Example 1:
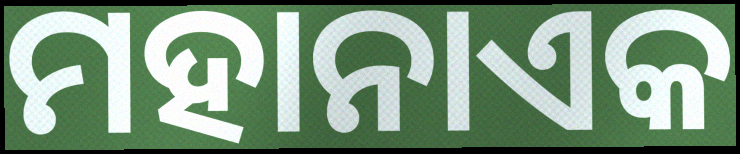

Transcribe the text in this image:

ମହାନାଏକ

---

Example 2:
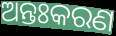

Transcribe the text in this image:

ଅନ୍ତଃକରଣ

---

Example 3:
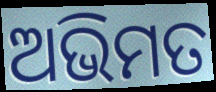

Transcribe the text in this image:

ଅଭିମତ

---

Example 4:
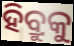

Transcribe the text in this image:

ହିବ୍ରୁକୁ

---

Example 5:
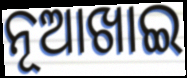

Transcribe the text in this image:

ନୂଆଖାଇ